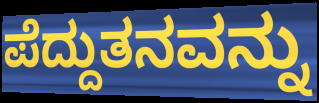
ಪೆದ್ದುತನವನ್ನು